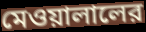
মেওয়ালালের